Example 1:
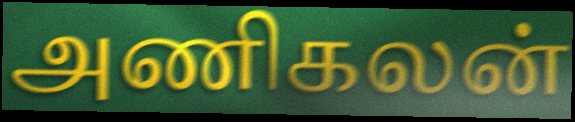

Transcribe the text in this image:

அணிகலன்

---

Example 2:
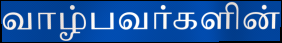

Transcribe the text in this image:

வாழ்பவர்களின்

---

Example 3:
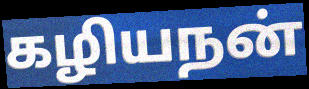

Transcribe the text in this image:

கழியநன்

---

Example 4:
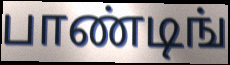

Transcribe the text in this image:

பாண்டிங்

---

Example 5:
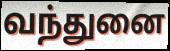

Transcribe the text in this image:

வந்துனை